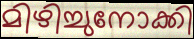
മിഴിച്ചുനോക്കി